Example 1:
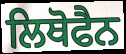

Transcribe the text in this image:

ਲਿਥੋਫੈਨ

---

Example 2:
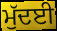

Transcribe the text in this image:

ਮੁੱਦਈ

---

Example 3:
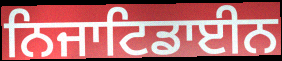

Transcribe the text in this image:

ਨਿਜਾਟਿਡਾਈਨ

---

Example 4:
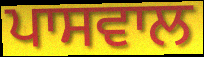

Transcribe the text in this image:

ਪਾਸਵਾਲ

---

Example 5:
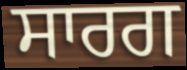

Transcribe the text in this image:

ਸਾਰਗ